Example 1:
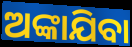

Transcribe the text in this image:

ଅଙ୍କାଯିବା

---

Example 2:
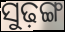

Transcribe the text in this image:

ସୁଢ଼ଙ୍ଗ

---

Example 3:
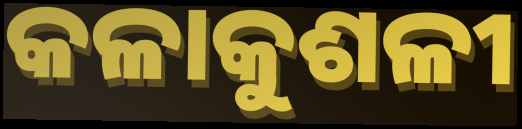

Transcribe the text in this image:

କଳାକୁଶଳୀ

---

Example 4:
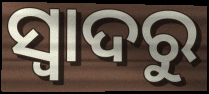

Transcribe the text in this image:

ସ୍ବାଦରୁ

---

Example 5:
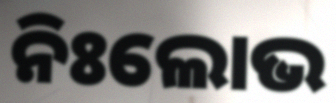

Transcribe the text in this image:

ନିଃଲୋଭ